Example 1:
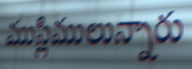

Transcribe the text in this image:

ముస్లిములున్నారు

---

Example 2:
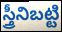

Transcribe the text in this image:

స్త్రీనిబట్టి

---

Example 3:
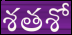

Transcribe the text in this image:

శతశో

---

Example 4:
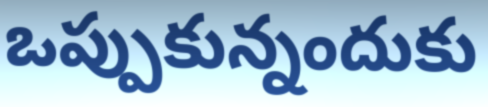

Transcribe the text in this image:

ఒప్పుకున్నందుకు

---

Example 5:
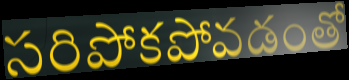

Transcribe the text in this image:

సరిపోకపోవడంతో